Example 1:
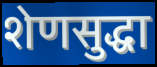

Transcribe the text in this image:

शेणसुद्धा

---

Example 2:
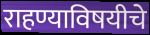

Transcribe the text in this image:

राहण्याविषयीचे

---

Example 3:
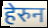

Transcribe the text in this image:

हेरुन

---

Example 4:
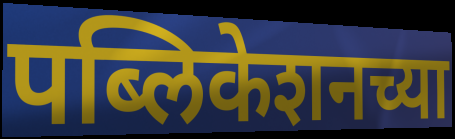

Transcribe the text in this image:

पब्लिकेशनच्या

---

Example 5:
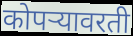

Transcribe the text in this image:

कोपऱ्यावरती